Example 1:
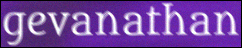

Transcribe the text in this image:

gevanathan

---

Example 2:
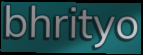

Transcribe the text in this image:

bhrityo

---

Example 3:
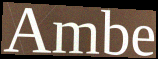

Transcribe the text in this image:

Ambe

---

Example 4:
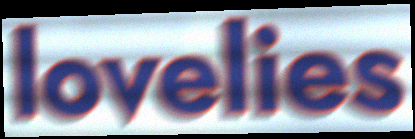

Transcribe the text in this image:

lovelies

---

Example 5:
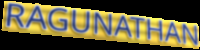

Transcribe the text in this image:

RAGUNATHAN